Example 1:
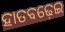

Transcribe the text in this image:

ହାତବଢ଼େଇ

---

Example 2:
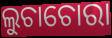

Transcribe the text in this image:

ଲୁଚାଚୋରା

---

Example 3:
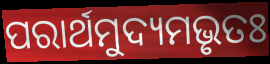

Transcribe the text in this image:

ପରାର୍ଥମୁଦ୍ୟମଭୃତଃ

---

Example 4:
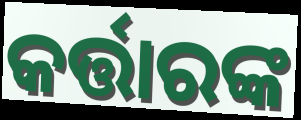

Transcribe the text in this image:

କର୍ତ୍ତାରଙ୍କ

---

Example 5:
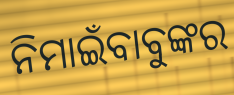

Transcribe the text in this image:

ନିମାଇଁବାବୁଙ୍କର